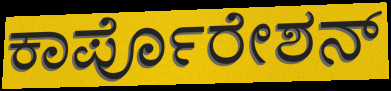
ಕಾರ್ಪೊರೇಶನ್